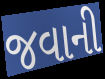
જવાની